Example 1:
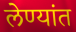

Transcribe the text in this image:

लेण्यांत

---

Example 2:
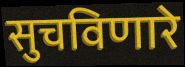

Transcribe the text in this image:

सुचविणारे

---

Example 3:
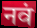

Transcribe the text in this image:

नवं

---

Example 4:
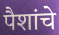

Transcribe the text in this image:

पैशांचे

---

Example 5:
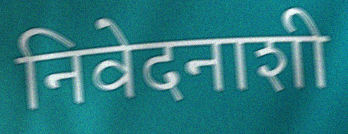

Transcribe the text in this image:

निवेदनाशी